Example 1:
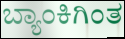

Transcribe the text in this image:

ಬ್ಯಾಂಕಿಗಿಂತ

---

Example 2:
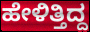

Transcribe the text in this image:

ಹೇಳಿತ್ತಿದ್ದ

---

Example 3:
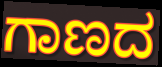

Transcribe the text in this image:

ಗಾಣದ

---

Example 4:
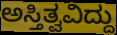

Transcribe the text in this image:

ಅಸ್ತಿತ್ವವಿದ್ದು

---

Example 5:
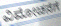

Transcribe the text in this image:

ವಿಮೋಚನೆಗೆ